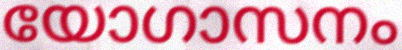
യോഗാസനം